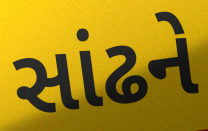
સાંઢને